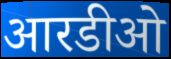
आरडीओ